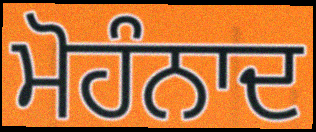
ਮੋਹੰਨਾਦ